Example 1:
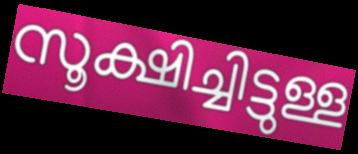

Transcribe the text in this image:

സൂക്ഷിച്ചിട്ടുള്ള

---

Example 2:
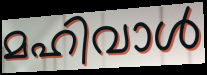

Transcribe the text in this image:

മഹിവാൾ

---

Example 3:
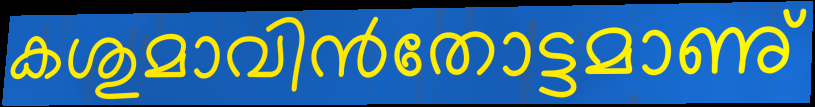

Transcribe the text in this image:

കശുമാവിൻതോട്ടമാണു്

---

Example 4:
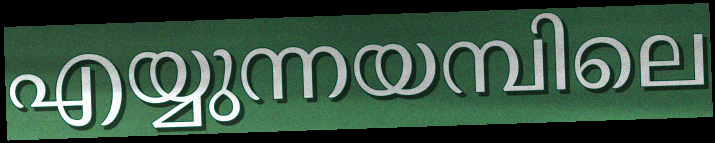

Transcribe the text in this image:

എയ്യുന്നയമ്പിലെ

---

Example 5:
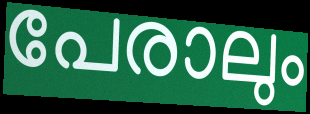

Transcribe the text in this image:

പേരാലും